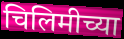
चिलिमीच्या